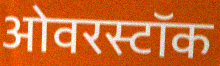
ओवरस्टॉक